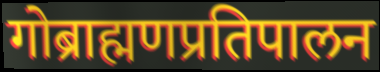
गोब्राह्मणप्रतिपालन